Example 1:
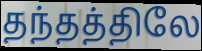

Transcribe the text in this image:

தந்தத்திலே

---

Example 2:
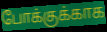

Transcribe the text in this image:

போக்குக்காக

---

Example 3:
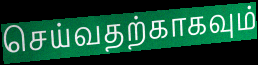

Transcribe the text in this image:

செய்வதற்காகவும்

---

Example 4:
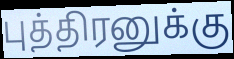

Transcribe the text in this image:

புத்திரனுக்கு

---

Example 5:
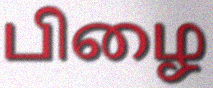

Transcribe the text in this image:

பிழை